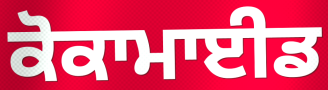
ਕੋਕਾਮਾਈਡ